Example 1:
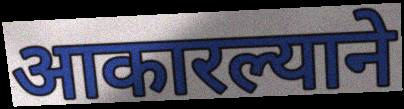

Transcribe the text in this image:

आकारल्याने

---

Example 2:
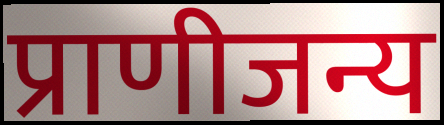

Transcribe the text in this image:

प्राणीजन्य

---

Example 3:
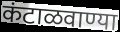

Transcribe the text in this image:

कंटाळवाण्या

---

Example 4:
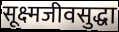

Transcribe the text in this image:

सूक्ष्मजीवसुद्धा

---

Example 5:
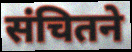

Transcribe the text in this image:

संचितने